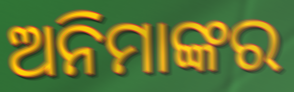
ଅନିମାଙ୍କର